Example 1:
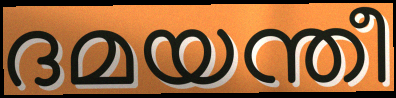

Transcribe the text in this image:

ദമയന്തീ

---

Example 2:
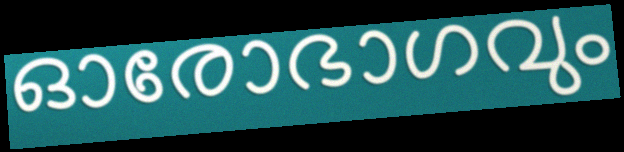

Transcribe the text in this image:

ഓരോഭാഗവും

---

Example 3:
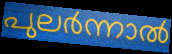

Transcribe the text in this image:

പുലർന്നാൽ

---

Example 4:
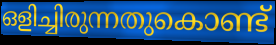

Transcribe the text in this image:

ഒളിച്ചിരുന്നതുകൊണ്ട്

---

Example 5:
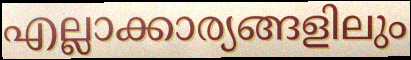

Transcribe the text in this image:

എല്ലാക്കാര്യങ്ങളിലും